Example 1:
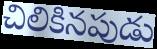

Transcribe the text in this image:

చిలికినపుడు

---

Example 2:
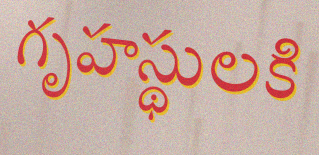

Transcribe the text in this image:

గృహస్థులకి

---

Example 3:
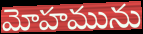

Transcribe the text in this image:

మోహమును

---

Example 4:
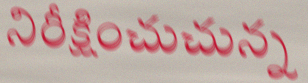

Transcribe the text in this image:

నిరీక్షించుచున్న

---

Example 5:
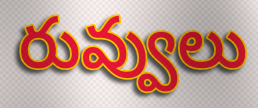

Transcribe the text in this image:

రువ్వులు